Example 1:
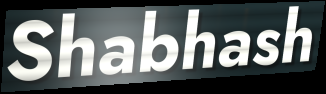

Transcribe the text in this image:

Shabhash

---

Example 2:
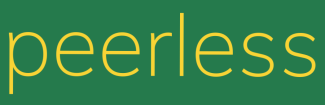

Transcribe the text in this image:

peerless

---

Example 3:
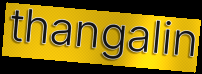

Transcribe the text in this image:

thangalin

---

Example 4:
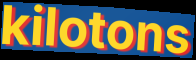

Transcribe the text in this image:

kilotons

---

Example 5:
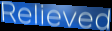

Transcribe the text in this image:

Relieved